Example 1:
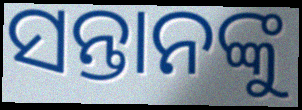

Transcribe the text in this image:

ସନ୍ତାନଙ୍କୁ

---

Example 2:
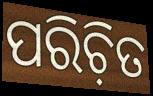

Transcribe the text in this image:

ପରିଚ଼ିତ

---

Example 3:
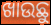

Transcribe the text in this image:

ଖାଉଛୁ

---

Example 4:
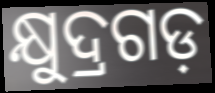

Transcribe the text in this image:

କ୍ଷୁଦ୍ରଗଡ଼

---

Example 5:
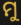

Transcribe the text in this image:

ମୁ